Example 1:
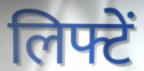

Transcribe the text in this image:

लिफ्टें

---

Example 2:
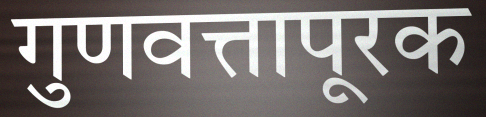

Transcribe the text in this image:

गुणवत्तापूरक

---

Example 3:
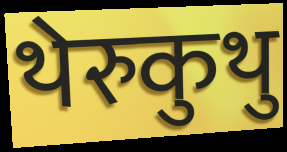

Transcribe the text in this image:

थेरुकुथु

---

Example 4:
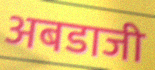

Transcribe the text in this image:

अबडाजी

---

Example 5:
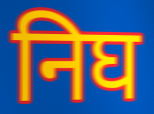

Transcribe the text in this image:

निघ